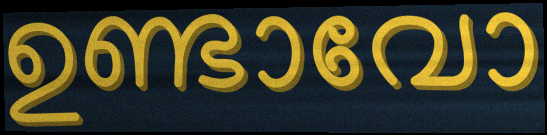
ഉണ്ടാവോ